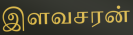
இளவசரன்